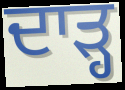
ਦਾੜ੍ਹ